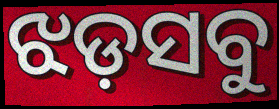
ଝଡ଼ସବୁ